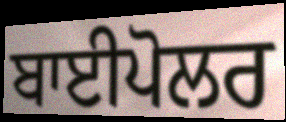
ਬਾਈਪੋਲਰ